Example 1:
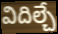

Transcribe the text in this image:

విదిల్చే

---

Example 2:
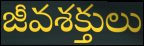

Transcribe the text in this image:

జీవశక్తులు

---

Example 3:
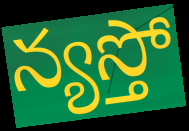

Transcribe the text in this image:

న్యస్తో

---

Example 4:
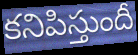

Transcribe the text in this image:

కనిపిస్తుందీ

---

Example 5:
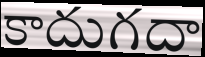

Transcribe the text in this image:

కాదుగదా